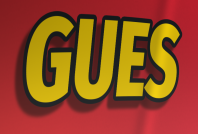
GUES